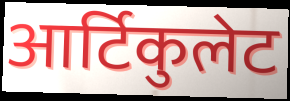
आर्टिकुलेट